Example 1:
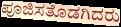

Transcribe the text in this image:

ಪೂಜಿಸತೊಡಗಿದರು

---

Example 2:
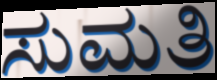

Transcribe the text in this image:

ಸುಮತಿ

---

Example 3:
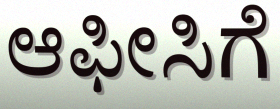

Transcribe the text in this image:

ಆಫೀಸಿಗೆ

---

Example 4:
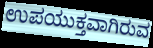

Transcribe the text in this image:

ಉಪಯುಕ್ತವಾಗಿರುವ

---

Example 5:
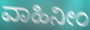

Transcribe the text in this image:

ವಾಹಿನೀಂ